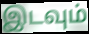
இடவும்